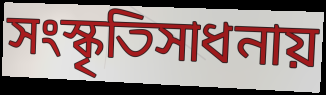
সংস্কৃতিসাধনায়